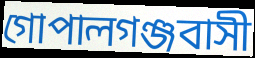
গোপালগঞ্জবাসী